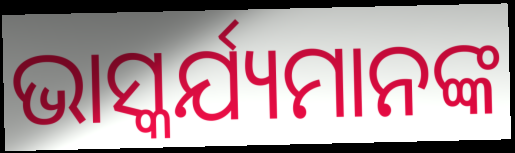
ଭାସ୍କର୍ଯ୍ୟମାନଙ୍କ